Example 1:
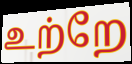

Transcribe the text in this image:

உற்றே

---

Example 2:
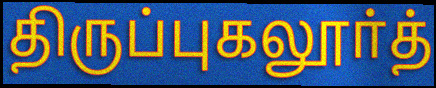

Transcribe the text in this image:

திருப்புகலூர்த்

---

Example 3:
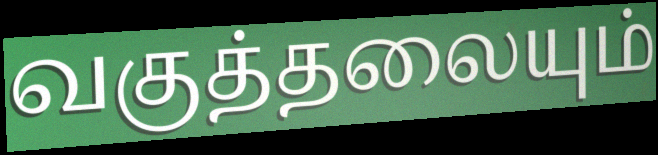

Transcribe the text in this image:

வகுத்தலையும்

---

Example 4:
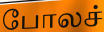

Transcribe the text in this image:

போலச்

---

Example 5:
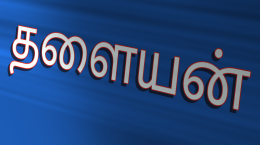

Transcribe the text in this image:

தளையன்